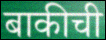
बाकीची